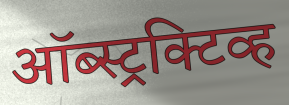
ऑब्स्ट्रक्टिव्ह